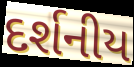
દર્શનીય